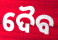
ଦୈବ